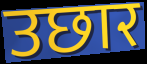
उछार